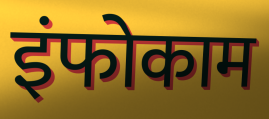
इंफोकाम